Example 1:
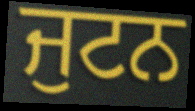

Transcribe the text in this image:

ਜੁਟਨ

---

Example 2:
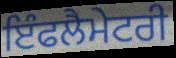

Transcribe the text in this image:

ਇੰਫਲੈਮੇਟਰੀ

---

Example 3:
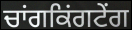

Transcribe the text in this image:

ਚਾਂਗਕਿਂਗਟੇਂਗ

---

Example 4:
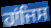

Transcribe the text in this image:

ਹਾਂਜਿਸ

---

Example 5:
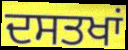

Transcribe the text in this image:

ਦਸਤਖਾਂ